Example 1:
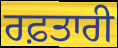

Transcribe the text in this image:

ਰਫ਼ਤਾਰੀ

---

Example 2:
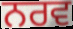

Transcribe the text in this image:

ਨਰਵ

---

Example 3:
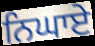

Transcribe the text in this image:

ਨਿਘਾਏ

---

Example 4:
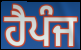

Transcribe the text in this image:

ਹੈਪੰਜ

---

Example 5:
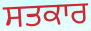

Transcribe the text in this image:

ਸਤਕਾਰ